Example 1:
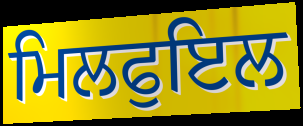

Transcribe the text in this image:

ਮਿਲਫੁਇਲ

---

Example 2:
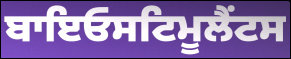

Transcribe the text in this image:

ਬਾਇਓਸਟਿਮੂਲੈਂਟਸ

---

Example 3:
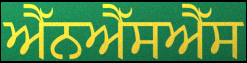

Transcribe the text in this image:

ਐੱਨਐੱਸਐੱਸ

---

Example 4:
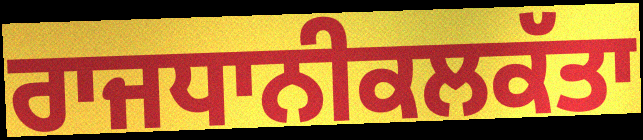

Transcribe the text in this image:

ਰਾਜਧਾਨੀਕਲਕੱਤਾ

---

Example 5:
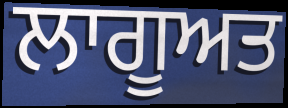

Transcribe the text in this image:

ਲਾਗੂਅਤ